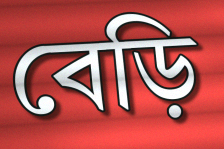
বেড়ি